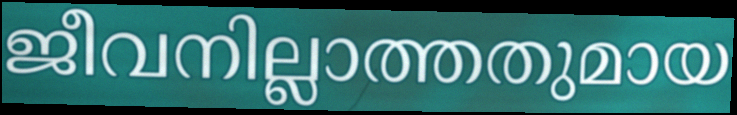
ജീവനില്ലാത്തതുമായ